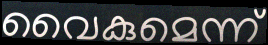
വൈകുമെന്ന്